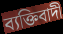
ব্যক্তিবাদী